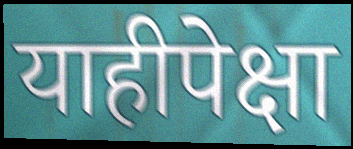
याहीपेक्षा